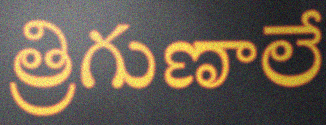
త్రిగుణాలే